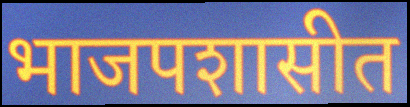
भाजपशासीत